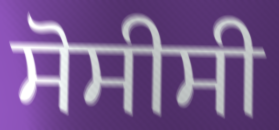
ਸੋਸੀਸੀ